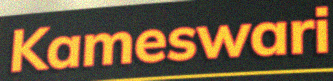
Kameswari